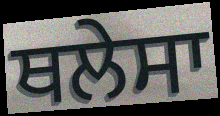
ਥਲੇਸਾ